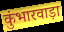
कुंभारवाड़ा